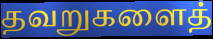
தவறுகளைத்